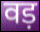
वड़